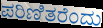
ಪರಿಣಿತರೆಂದು